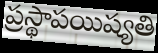
ప్రస్థాపయిష్యతి